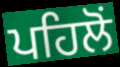
ਪਹਿਲੋਂ